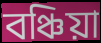
বঞ্চিয়া